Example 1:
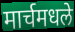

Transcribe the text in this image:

मार्चमधले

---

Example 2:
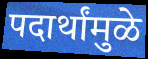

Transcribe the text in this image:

पदार्थांमुळे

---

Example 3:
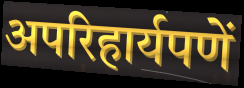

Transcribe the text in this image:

अपरिहार्यपणें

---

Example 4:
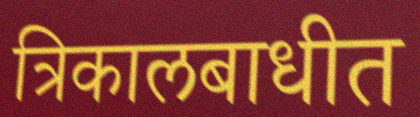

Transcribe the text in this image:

त्रिकालबाधीत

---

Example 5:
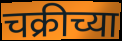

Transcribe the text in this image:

चक्रीच्या